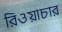
রিওয়াচার